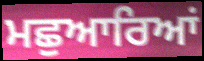
ਮਛੁਆਰਿਆਂ